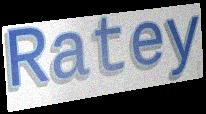
Ratey